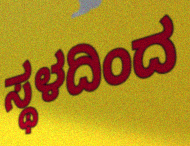
ಸ್ಥಳದಿಂದ